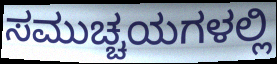
ಸಮುಚ್ಚಯಗಳಲ್ಲಿ